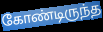
கோண்டிருந்த